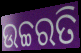
ଉଚ୍ଚରତି